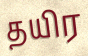
தயிர